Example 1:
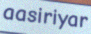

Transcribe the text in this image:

aasiriyar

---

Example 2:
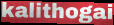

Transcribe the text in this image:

kalithogai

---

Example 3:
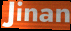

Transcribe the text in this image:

Jinan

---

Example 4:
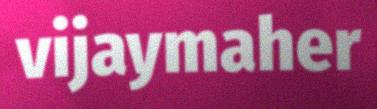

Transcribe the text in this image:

vijaymaher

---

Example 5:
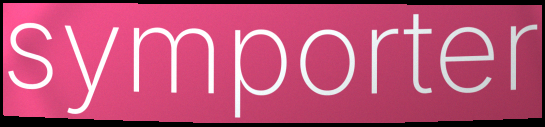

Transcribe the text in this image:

symporter